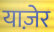
याज़ेर